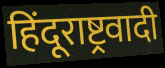
हिंदूराष्ट्रवादी